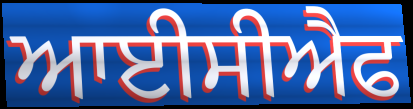
ਆਈਸੀਐਫ